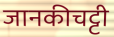
जानकीचट्टी